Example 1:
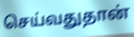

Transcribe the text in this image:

செய்வதுதான்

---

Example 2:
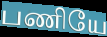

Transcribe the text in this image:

பணியே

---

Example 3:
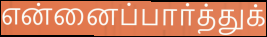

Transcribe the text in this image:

என்னைப்பார்த்துக்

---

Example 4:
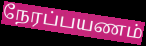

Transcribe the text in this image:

நேரப்பயணம்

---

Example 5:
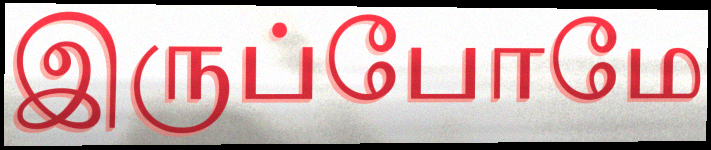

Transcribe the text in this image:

இருப்போமே